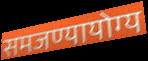
समजण्यायोग्य